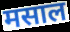
मसाल